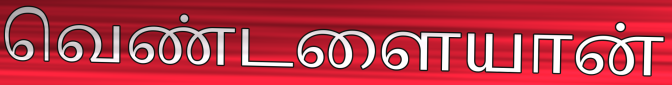
வெண்டளையான்